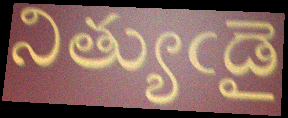
నిత్యుఁడై